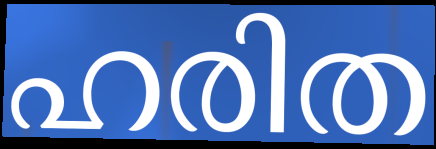
ഹരിത